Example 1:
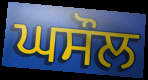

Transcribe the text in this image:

ਘਸੌਲ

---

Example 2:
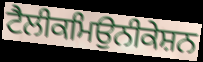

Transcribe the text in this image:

ਟੈਲੀਕਮਿਉਨੀਕੇਸ਼ਨ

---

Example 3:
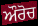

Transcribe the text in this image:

ਔਰੋਚ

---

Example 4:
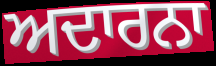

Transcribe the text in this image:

ਅਦਾਰਨਾ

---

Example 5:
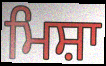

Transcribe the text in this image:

ਮਿਸ਼ਾ